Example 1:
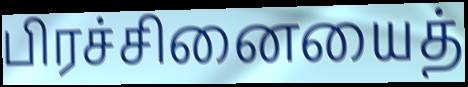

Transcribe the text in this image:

பிரச்சினையைத்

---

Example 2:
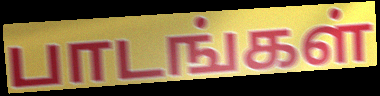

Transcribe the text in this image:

பாடங்கள்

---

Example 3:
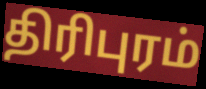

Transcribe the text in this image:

திரிபுரம்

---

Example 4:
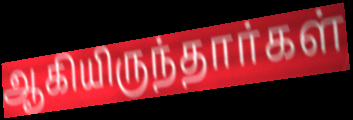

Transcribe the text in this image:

ஆகியிருந்தார்கள்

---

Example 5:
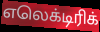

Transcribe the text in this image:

எலெக்டிரிக்